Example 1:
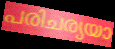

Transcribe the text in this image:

പരിചര്യയാ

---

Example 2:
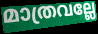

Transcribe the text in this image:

മാത്രവല്ലേ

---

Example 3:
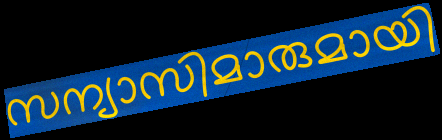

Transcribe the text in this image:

സന്യാസിമാരുമായി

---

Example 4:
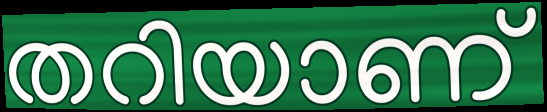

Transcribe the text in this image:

തറിയാണ്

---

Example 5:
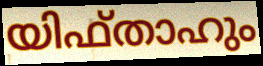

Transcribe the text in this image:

യിഫ്താഹും